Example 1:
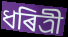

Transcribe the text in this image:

ধৰিত্ৰী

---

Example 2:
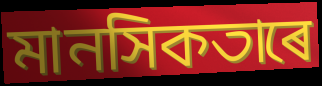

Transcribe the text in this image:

মানসিকতাৰে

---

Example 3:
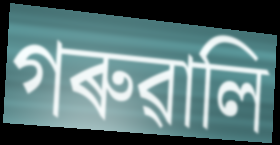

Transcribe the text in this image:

গৰুৱালি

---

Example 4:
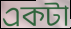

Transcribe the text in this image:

একটা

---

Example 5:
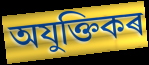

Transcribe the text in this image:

অযুক্তিকৰ